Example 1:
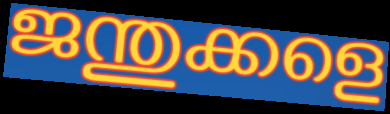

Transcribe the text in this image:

ജന്തുക്കളെ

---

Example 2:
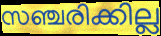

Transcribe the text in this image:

സഞ്ചരിക്കില്ല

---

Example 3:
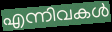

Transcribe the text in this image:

എന്നിവകൾ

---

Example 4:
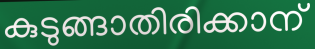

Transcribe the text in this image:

കുടുങ്ങാതിരിക്കാന്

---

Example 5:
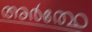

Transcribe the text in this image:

അർത്ഥേ